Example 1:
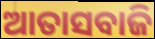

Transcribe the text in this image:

ଆତାସବାଜି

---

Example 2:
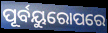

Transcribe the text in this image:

ପୂର୍ବୟୁରୋପରେ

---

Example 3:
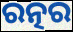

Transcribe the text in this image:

ରତ୍ନର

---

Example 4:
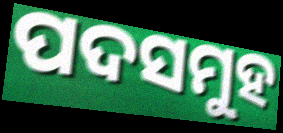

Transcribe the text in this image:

ପଦସମୁହ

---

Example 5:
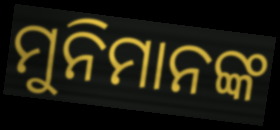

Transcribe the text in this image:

ମୁନିମାନଙ୍କ